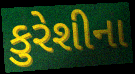
કુરેશીના